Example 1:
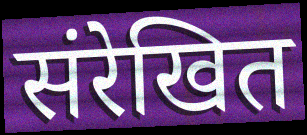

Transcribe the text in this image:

संरेखित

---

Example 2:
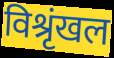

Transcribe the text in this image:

विश्रृंखल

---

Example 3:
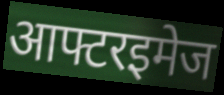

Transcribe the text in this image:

आफ्टरइमेज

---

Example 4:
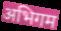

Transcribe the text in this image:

अभिगम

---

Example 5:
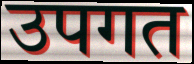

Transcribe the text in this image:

उपगत